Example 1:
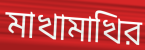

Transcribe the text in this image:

মাখামাখির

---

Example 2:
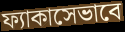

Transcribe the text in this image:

ফ্যাকাসেভাবে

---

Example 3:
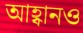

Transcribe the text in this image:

আহ্বানও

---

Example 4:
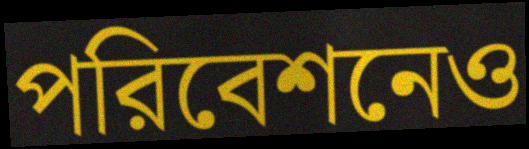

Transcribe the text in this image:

পরিবেশনেও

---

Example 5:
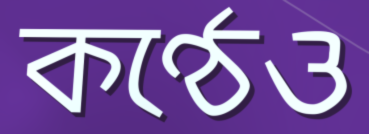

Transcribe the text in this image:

কণ্ঠেও